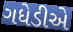
ગધેડીએ